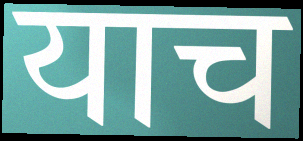
याच